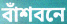
বাঁশবনে